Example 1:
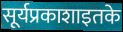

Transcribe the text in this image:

सूर्यप्रकाशाइतके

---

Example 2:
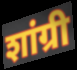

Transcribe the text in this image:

शांग्री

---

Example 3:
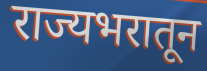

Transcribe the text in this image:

राज्यभरातून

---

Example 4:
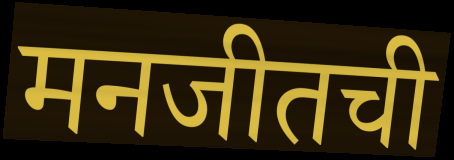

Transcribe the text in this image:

मनजीतची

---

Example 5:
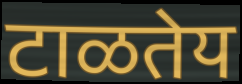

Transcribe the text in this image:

टाळतेय